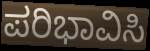
ಪರಿಭಾವಿಸಿ